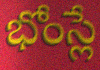
భోంస్లే